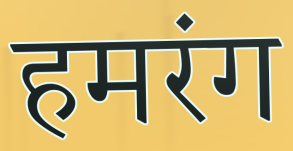
हमरंग